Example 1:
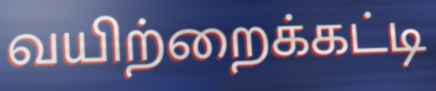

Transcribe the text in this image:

வயிற்றைக்கட்டி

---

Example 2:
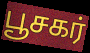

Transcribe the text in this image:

பூசகர்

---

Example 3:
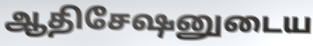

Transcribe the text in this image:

ஆதிசேஷனுடைய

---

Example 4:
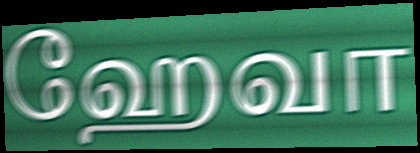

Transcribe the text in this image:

ஹேவா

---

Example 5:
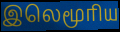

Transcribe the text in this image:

இலெமூரிய